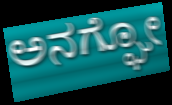
ಅನಗ್ಘೋ